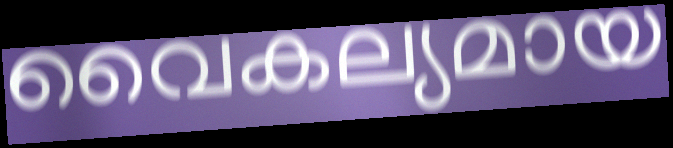
വൈകല്യമായ